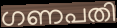
ഗണപതി